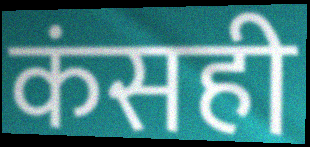
कंसही